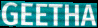
GEETHA